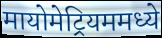
मायोमेट्रियममध्ये